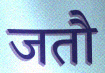
जतौ